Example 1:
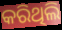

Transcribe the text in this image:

କରିଥିଲି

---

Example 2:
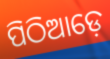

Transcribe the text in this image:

ପିଠିଆଡ଼େ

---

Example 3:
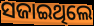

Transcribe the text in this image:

ସଜାଇଥିଲେ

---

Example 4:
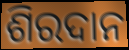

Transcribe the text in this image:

ଶିରଦାନ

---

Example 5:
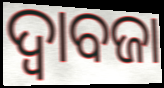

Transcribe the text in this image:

ଦ୍ୱାବଜା